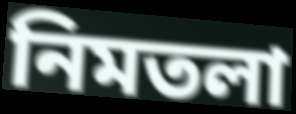
নিমতলা